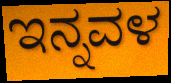
ಇನ್ನವಳ